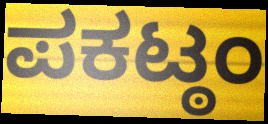
ಪಕಟ್ಠಂ